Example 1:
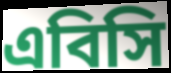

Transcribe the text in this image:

এবিসি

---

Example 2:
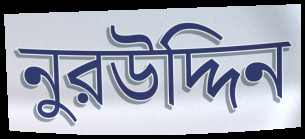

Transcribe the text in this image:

নুরউদ্দিন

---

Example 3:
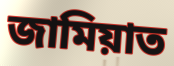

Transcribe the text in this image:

জামিয়াত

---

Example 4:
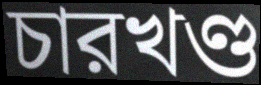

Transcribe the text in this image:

চারখণ্ড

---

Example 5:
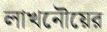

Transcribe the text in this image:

লাখনৌয়ের